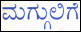
ಮಗ್ಗುಲಿಗೆ